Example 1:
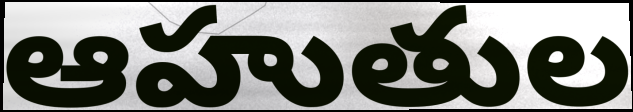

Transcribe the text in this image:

ఆహుతుల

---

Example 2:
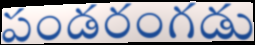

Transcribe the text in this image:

పండరంగడు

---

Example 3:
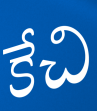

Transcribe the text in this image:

కేచి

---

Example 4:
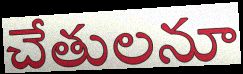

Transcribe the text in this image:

చేతులనూ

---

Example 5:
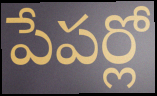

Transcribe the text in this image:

పేపర్లో